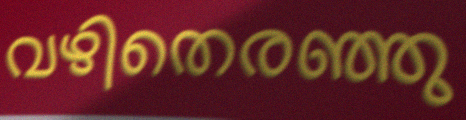
വഴിതെരഞ്ഞു